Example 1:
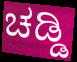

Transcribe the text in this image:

ಚಡ್ಡಿ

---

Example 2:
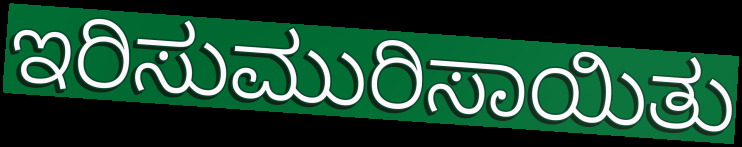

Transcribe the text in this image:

ಇರಿಸುಮುರಿಸಾಯಿತು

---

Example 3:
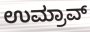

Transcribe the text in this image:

ಉಮ್ರಾವ್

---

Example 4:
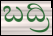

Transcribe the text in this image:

ಬದ್ರಿ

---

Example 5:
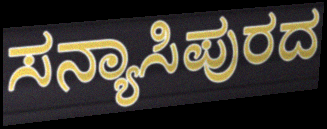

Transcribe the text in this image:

ಸನ್ಯಾಸಿಪುರದ